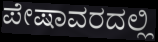
ಪೇಷಾವರದಲ್ಲಿ